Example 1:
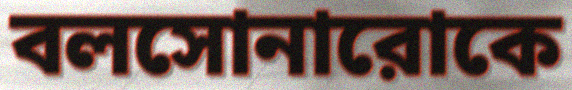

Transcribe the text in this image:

বলসোনারোকে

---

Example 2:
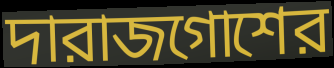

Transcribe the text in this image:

দারাজগোশের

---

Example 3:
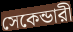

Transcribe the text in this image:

সেকেন্ডারী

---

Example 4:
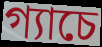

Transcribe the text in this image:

গ্যাচে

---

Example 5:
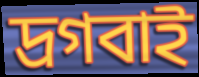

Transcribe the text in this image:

দ্রগবাই